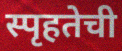
स्पृहतेची